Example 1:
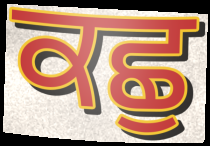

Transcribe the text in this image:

ਕਛੁ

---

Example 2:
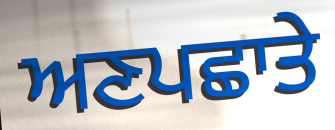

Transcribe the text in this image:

ਅਣਪਛਾਤੇ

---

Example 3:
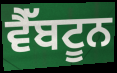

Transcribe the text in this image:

ਵੈੱਬਟੂਨ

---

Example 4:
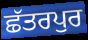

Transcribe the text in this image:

ਛੱਤਰਪੁਰ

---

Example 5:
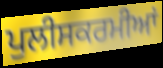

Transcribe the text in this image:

ਪੁਲੀਸਕਰਮੀਆਂ